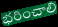
భరించాలి